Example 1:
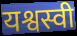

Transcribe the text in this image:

यश्वस्वी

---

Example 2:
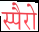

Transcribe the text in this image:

स्पैरो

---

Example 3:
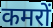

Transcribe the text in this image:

कमरों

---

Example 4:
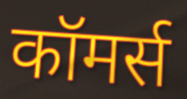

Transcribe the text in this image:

कॉमर्स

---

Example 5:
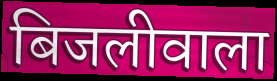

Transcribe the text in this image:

बिजलीवाला